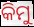
କିମୁ